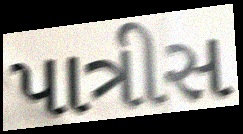
પાત્રીસ